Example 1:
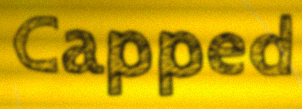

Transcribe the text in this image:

Capped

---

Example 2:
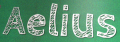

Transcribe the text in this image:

Aelius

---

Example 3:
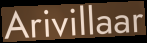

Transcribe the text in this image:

Arivillaar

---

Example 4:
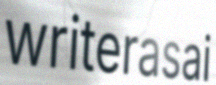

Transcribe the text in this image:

writerasai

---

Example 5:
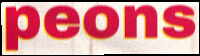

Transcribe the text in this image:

peons